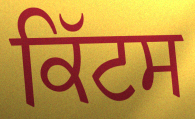
ਕਿੱਟਸ